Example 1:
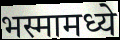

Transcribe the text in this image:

भस्मामध्ये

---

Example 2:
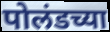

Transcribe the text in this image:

पोलंडच्या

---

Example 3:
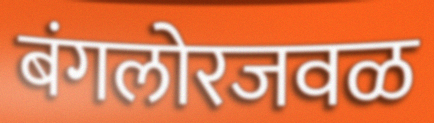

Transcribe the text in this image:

बंगलोरजवळ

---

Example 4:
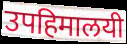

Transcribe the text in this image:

उपहिमालयी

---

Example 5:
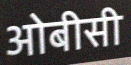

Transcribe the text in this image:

ओबीसी